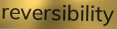
reversibility